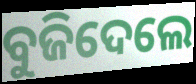
ବୁଜିଦେଲେ